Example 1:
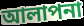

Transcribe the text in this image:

আলাপনা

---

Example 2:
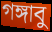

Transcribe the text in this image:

গঙ্গাবু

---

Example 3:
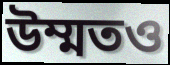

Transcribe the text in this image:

উম্মতও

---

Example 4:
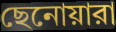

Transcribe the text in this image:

ছেনোয়ারা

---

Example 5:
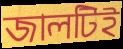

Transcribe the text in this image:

জালটিই